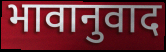
भावानुवाद